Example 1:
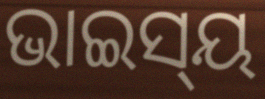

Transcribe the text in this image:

ଭାଇସ୍‌ୟ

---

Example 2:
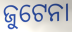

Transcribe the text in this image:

ଜୁଟେନା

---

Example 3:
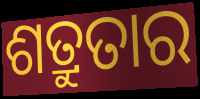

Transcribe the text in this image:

ଶତ୍ରୁତାର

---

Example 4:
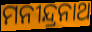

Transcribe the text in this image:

ମନୀନ୍ଦ୍ରନାଥ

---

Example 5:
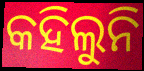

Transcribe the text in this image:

କହିଲୁନି